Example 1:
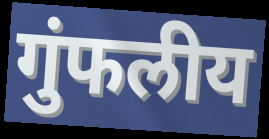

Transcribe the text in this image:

गुंफलीय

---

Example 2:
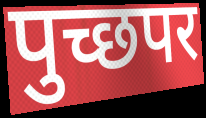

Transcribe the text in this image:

पुच्छपर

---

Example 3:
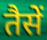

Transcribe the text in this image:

तैसें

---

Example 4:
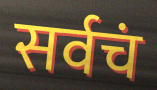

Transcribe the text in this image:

सर्वचं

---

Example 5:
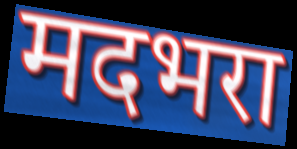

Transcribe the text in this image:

मदभरा